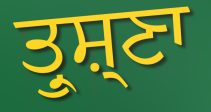
ਤ੍ਰੁਸ਼੍ਣਾ